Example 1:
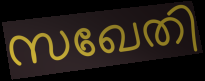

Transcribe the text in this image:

സഖേതി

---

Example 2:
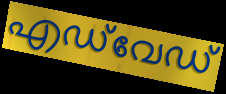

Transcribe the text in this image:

എഡ്‌വേഡ്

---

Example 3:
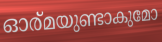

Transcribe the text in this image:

ഓര്മയുണ്ടാകുമോ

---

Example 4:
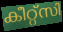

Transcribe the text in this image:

കീറ്റ്സി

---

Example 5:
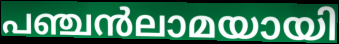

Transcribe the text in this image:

പഞ്ചൻലാമയായി